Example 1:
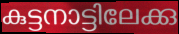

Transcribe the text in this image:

കുട്ടനാട്ടിലേക്കു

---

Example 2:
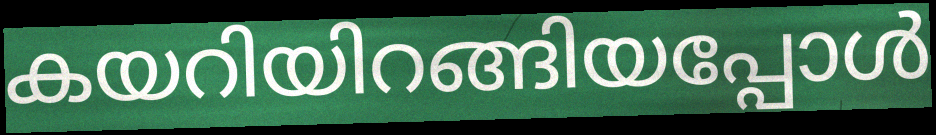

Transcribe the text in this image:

കയറിയിറങ്ങിയപ്പോൾ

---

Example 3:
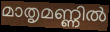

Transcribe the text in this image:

മാതൃമണ്ണിൽ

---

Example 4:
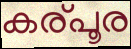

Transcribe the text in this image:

കര്പൂര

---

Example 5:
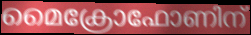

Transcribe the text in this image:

മൈക്രോഫോണിന്